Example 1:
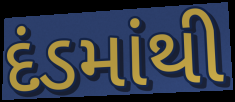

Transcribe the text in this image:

દંડમાંથી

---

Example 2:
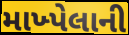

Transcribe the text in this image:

માખ્પેલાની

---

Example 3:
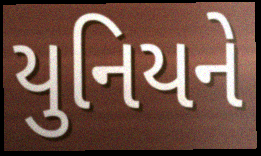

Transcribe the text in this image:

યુનિયને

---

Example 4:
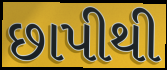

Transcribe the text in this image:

છાપીથી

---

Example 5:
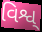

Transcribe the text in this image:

વિશ્વ્